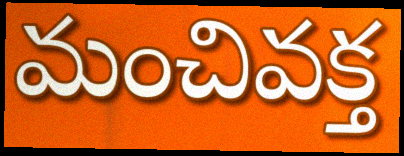
మంచివక్త